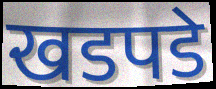
खडपडे